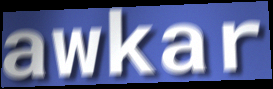
awkar